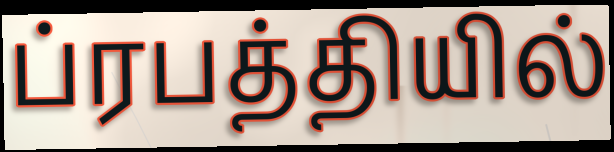
ப்ரபத்தியில்